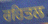
ਰਹਿਤਲ